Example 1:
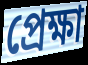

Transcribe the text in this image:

প্ৰেক্ষা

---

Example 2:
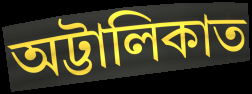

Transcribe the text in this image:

অট্টালিকাত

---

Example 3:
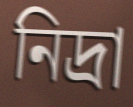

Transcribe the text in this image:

নিদ্ৰা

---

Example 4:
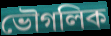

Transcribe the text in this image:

ভৌগলিক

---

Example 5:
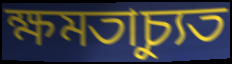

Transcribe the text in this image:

ক্ষমতাচ্যুত